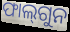
ଫାଲ୍‍ଗୁନ